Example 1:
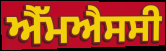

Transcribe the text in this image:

ਐੱਮਐਸਸੀ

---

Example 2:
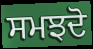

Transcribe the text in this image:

ਸਮਝਦੋ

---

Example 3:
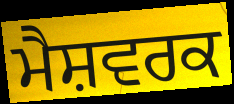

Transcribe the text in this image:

ਮੈਸ਼ਵਰਕ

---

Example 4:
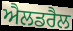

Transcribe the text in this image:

ਐਲਡਰੈਲ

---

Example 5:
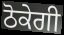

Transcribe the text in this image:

ਠੋਕੇਗੀ